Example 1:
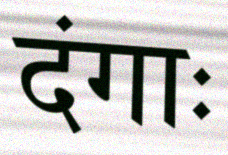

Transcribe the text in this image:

दंगाः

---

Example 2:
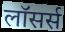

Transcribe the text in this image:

लॉसर्स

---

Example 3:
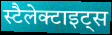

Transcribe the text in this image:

स्टैलेक्टाइट्स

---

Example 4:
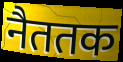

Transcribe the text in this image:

नैततक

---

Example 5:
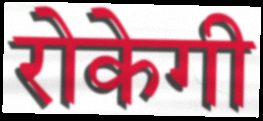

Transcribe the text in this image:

रोकेगी